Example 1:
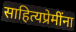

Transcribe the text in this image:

साहित्यप्रेमींना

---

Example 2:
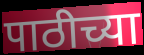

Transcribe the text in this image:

पाठीच्या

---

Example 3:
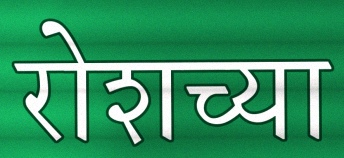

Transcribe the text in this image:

रोशच्या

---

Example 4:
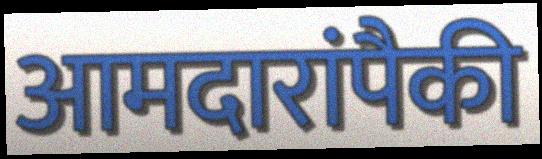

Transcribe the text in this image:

आमदारांपैकी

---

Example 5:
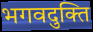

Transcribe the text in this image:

भगवदुक्ति